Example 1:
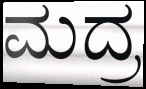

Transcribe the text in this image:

ಮದ್ರ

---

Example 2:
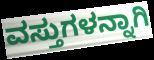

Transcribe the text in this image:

ವಸ್ತುಗಳನ್ನಾಗಿ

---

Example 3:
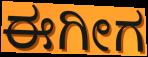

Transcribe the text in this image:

ಈಗೀಗ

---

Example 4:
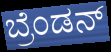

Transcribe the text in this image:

ಬ್ರೆಂಡನ್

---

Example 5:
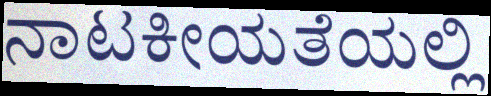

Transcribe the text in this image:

ನಾಟಕೀಯತೆಯಲ್ಲಿ